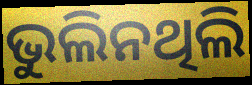
ଭୁଲିନଥିଲି